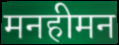
मनहीमन